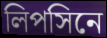
লিপসিনে